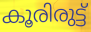
കൂരിരുട്ട്